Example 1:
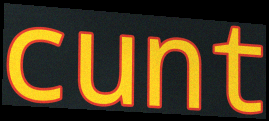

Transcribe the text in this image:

cunt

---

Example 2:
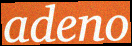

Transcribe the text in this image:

adeno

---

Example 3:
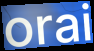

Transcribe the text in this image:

orai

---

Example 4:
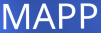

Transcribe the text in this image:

MAPP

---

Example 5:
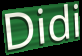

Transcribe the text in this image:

Didi